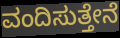
ವಂದಿಸುತ್ತೇನೆ